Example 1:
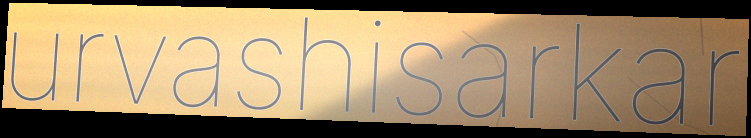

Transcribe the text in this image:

urvashisarkar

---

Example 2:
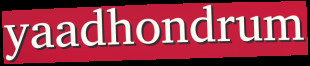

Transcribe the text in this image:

yaadhondrum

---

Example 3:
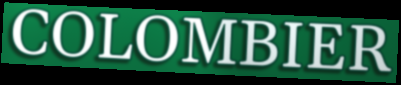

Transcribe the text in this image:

COLOMBIER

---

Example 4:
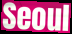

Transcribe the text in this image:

Seoul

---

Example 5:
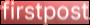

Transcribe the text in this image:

firstpost